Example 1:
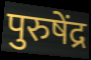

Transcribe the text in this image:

पुरुषेंद्र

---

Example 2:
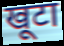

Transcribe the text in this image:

खूटा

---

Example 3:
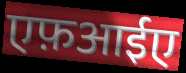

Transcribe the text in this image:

एफ़आईए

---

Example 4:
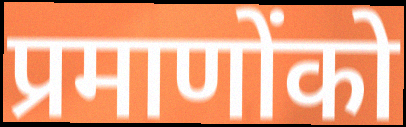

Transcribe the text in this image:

प्रमाणोंको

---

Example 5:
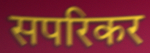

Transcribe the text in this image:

सपरिकर